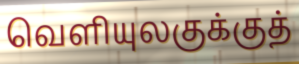
வெளியுலகுக்குத்